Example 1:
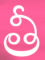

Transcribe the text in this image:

తీ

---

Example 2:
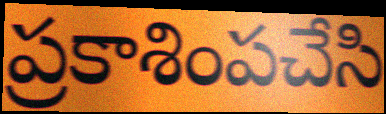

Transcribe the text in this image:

ప్రకాశింపచేసి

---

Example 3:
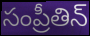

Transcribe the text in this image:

సంప్రీతిన్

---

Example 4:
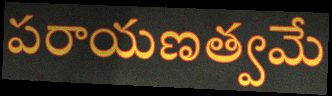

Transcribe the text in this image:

పరాయణత్వమే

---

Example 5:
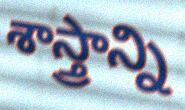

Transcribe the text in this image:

శాస్త్రాన్ని